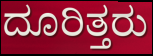
ದೂರಿತ್ತರು